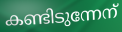
കണ്ടിടുന്നേന്